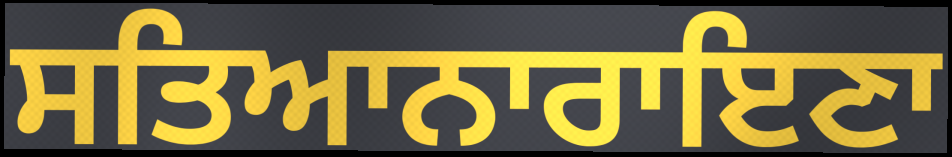
ਸਤਿਆਨਾਰਾਇਣਾ